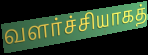
வளர்ச்சியாகத்